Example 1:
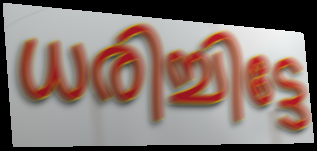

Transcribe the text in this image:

ധരിച്ചിട്ടേ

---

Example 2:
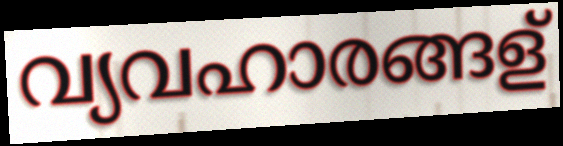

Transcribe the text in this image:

വ്യവഹാരങ്ങള്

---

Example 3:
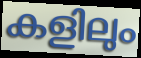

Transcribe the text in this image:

കളിലും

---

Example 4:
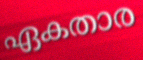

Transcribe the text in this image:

ഏകതാര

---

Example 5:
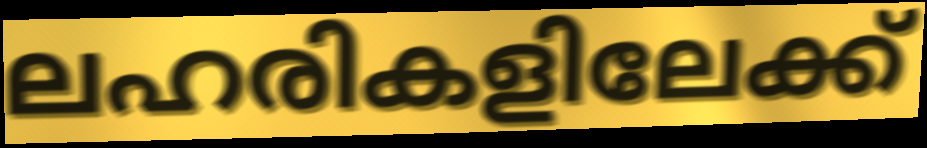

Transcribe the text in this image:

ലഹരികളിലേക്ക്